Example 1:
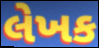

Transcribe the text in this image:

લેખક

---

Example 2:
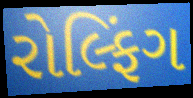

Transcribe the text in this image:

રોલ્ફિંગ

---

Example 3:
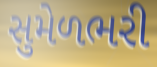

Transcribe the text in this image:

સુમેળભરી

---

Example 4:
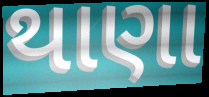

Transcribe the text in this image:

થાણા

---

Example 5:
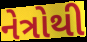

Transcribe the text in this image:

નેત્રોથી